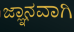
ಜ್ಞಾನವಾಗಿ